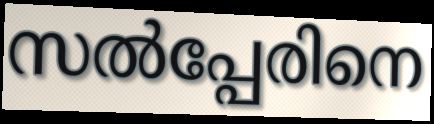
സൽപ്പേരിനെ